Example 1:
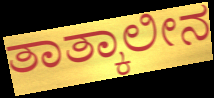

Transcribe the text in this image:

ತಾತ್ಕಾಲೀನ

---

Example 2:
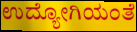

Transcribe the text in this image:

ಉದ್ಯೋಗಿಯಂತೆ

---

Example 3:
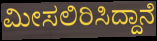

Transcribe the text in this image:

ಮೀಸಲಿರಿಸಿದ್ದಾನೆ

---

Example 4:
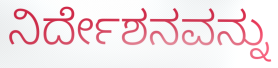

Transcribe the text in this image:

ನಿರ್ದೇಶನವನ್ನು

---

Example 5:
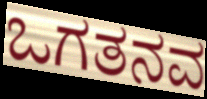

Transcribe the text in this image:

ಒಗತನವ